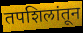
तपशिलांतून